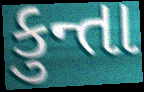
કુન્તા